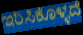
ಇರಿಸಿಕೊಳ್ಳದೆ